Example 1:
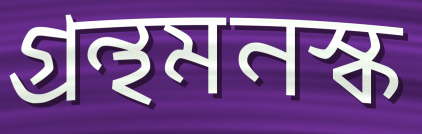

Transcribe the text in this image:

গ্রন্থমনস্ক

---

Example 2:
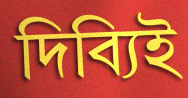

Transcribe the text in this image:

দিব্যিই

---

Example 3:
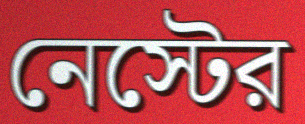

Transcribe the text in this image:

নেস্টের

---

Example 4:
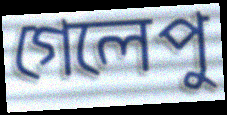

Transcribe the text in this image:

গেলেপু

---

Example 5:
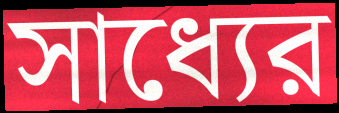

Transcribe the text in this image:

সাধ্যের